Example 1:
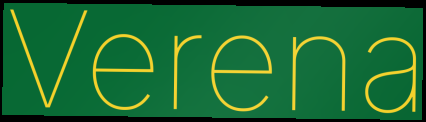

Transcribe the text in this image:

Verena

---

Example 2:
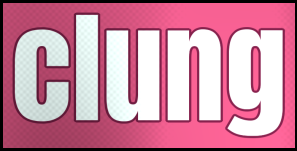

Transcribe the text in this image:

clung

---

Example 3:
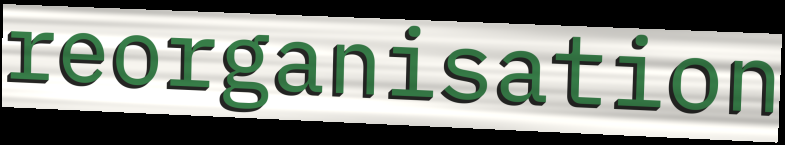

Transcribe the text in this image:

reorganisation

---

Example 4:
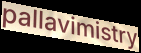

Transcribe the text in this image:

pallavimistry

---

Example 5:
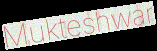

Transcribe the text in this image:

Mukteshwar